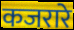
कजरारे